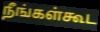
நீங்கள்கூட